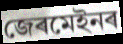
জেৰমেইনৰ